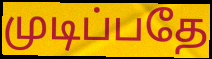
முடிப்பதே